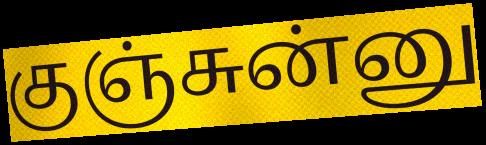
குஞ்சுன்னு